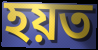
হয়ত